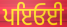
ਪਇਓਈ